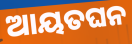
ଆୟତଘନ